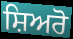
ਸ਼ਿਅਰੋ